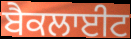
ਬੈਕਲਾਈਟ